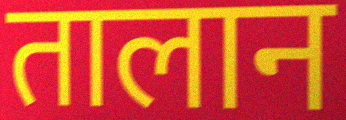
तालान